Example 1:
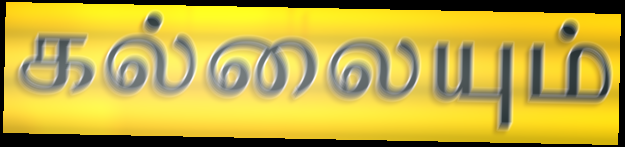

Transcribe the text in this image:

கல்லையும்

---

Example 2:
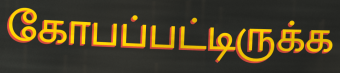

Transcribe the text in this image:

கோபப்பட்டிருக்க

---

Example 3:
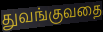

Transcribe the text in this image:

துவங்குவதை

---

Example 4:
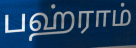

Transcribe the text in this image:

பஹ்ராம்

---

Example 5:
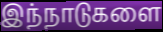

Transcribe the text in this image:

இந்நாடுகளை